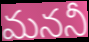
మననీ